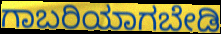
ಗಾಬರಿಯಾಗಬೇಡಿ